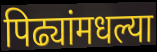
पिढ्यांमधल्या